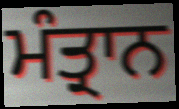
ਮੰਤ੍ਰਾਨ